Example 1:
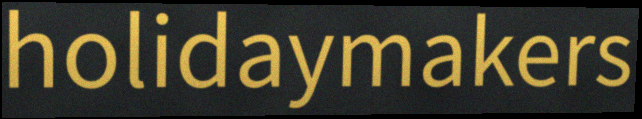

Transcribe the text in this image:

holidaymakers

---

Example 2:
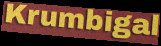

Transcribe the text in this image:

Krumbigal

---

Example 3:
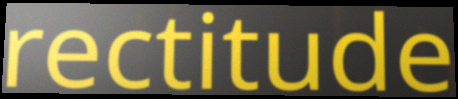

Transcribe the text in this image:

rectitude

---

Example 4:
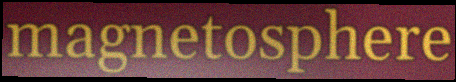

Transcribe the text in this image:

magnetosphere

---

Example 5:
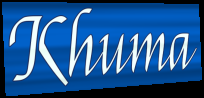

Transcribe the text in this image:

Khuma